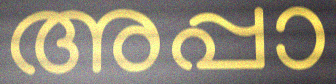
അപ്പാ